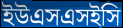
ইউএসএসইসি